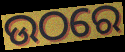
ଉଠରେ